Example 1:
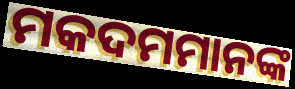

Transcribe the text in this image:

ମକଦମମାନଙ୍କ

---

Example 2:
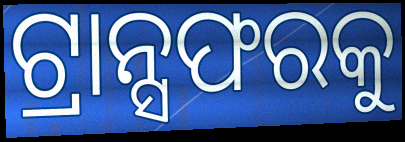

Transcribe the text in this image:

ଟ୍ରାନ୍ସଫରକୁ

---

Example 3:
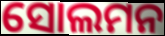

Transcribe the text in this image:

ସୋଲମନ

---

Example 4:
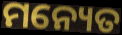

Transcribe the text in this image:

ମନ୍ୟେତ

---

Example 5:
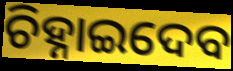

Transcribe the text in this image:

ଚିହ୍ନାଇଦେବ